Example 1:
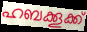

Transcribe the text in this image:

ഹബക്കൂക്ക്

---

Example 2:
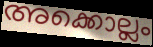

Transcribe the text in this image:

അക്കൊല്ലം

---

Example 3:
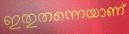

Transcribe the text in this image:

ഇതുതന്നെയാണ്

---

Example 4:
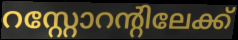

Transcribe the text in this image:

റസ്റ്റോറന്റിലേക്ക്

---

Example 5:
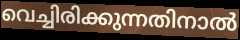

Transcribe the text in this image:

വെച്ചിരിക്കുന്നതിനാൽ